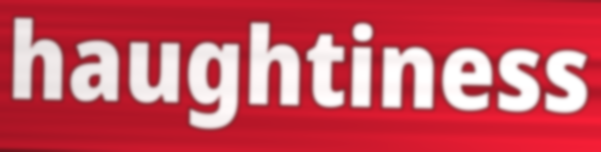
haughtiness